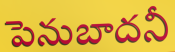
పెనుబాదనీ